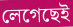
লেগেছেই